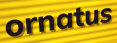
ornatus